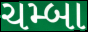
ચમ્બા